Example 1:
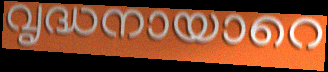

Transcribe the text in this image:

വൃദ്ധനായാറെ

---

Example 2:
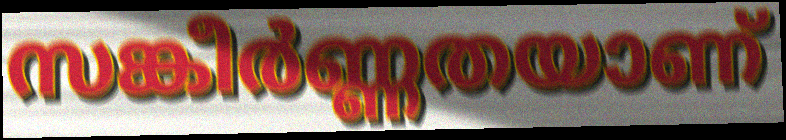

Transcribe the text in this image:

സങ്കീർണ്ണതയാണ്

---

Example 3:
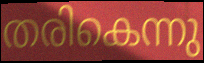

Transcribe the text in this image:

തരികെന്നു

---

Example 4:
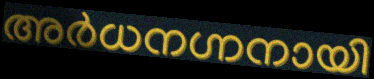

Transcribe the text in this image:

അർധനഗ്നനായി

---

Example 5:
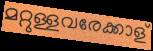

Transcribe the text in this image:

മറ്റുള്ളവരേക്കാള്